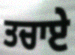
ਤਚਾਏ